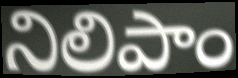
నిలిపాం